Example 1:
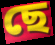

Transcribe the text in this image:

ছে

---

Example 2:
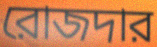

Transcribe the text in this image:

রোজদার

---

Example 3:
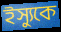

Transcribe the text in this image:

ইস্যুকে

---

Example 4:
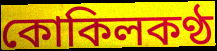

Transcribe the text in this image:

কোকিলকণ্ঠ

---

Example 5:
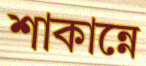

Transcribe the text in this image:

শাকান্নে